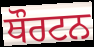
ਥੌਰਟਨ